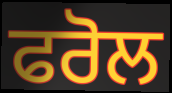
ਫਰੋਲ